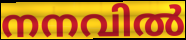
നനവിൽ